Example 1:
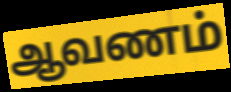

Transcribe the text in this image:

ஆவணம்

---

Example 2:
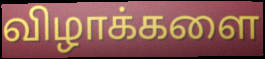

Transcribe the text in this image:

விழாக்களை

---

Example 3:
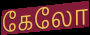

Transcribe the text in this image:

கேலோ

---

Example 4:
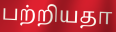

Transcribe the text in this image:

பற்றியதா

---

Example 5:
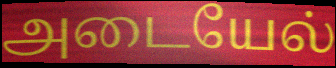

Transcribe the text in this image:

அடையேல்